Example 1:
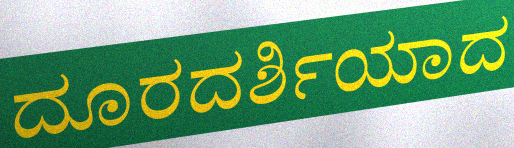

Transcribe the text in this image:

ದೂರದರ್ಶಿಯಾದ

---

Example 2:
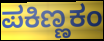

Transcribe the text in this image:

ಪಕಿಣ್ಣಕಂ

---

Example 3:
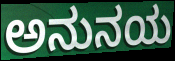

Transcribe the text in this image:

ಅನುನಯ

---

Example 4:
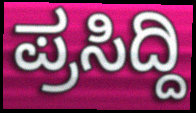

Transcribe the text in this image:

ಪ್ರಸಿದ್ದಿ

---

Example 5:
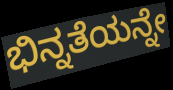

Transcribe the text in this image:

ಭಿನ್ನತೆಯನ್ನೇ